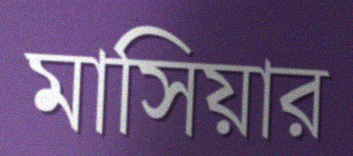
মাসিয়ার